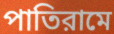
পাতিরামে